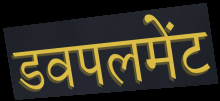
डवपलमेंट